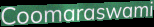
Coomaraswami